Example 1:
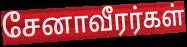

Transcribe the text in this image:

சேனாவீரர்கள்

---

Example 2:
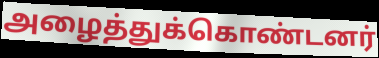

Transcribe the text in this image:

அழைத்துக்கொண்டனர்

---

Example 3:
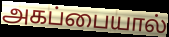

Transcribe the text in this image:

அகப்பையால்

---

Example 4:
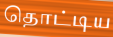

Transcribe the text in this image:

தொட்டிய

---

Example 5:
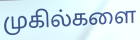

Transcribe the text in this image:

முகில்களை